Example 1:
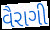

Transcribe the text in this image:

વૈરાગી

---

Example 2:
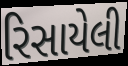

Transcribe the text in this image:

રિસાયેલી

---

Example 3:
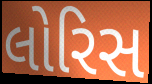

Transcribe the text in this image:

લોરિસ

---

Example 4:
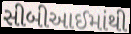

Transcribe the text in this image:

સીબીઆઈમાંથી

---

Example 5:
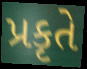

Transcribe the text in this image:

પ્રકૃતે